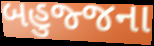
બહુજ્જના